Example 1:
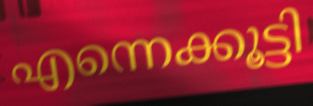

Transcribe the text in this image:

എന്നെക്കൂട്ടി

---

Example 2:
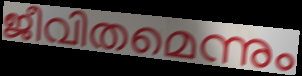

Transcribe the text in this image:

ജീവിതമെന്നും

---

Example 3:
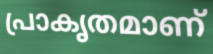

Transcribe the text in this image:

പ്രാകൃതമാണ്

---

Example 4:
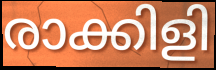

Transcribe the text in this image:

രാക്കിളി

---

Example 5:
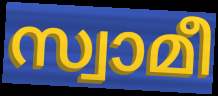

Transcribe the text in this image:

സ്വാമീ